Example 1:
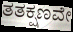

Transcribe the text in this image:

ತತಕ್ಷಣವೇ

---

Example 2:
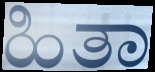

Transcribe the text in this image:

ಹಿತಾ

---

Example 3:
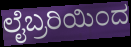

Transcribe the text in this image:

ಲೈಬ್ರರಿಯಿಂದ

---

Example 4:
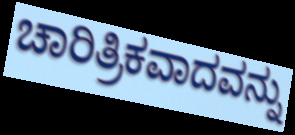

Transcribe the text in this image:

ಚಾರಿತ್ರಿಕವಾದವನ್ನು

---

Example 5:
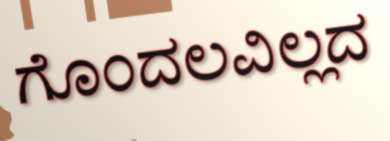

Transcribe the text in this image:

ಗೊಂದಲವಿಲ್ಲದ